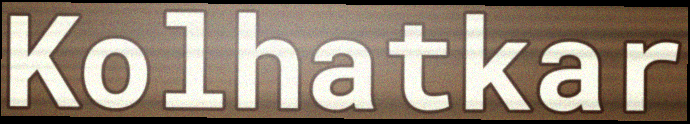
Kolhatkar